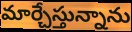
మార్చేస్తున్నాను